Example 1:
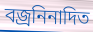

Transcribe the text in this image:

বজ্রনিনাদিত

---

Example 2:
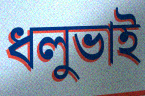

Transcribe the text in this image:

ধলুভাই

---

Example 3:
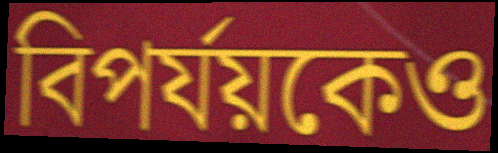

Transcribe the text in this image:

বিপর্যয়কেও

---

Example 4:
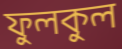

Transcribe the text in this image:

ফুলকুল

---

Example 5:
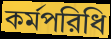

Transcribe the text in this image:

কর্মপরিধি